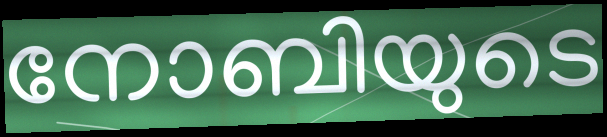
നോബിയുടെ